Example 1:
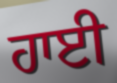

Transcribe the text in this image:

ਹਾਈ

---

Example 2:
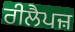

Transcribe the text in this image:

ਰੀਲੈਪਜ਼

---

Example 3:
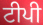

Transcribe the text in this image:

ਟੀਪੀ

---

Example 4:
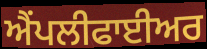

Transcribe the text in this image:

ਐੰਪਲੀਫਾਈਅਰ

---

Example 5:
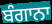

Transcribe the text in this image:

ਬੰਗਾਨਾ